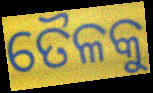
ତୈଳକୁ